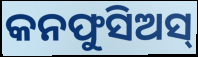
କନଫୁସିଅସ୍